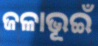
ଜଳାଭୂଇଁ